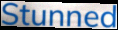
Stunned